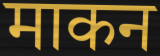
माकन